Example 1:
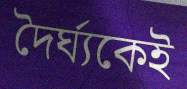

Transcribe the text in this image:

দৈর্ঘ্যকেই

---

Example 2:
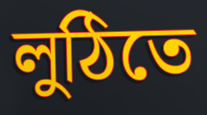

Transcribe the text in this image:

লুঠিতে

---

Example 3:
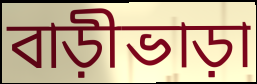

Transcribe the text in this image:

বাড়ীভাড়া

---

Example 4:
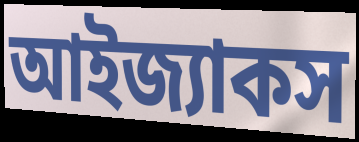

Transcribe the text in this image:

আইজ্যাকস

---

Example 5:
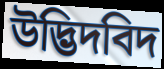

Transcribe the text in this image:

উদ্ভিদবিদ